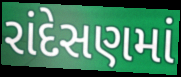
રાંદેસણમાં